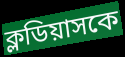
ক্লডিয়াসকে